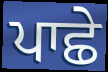
ਪਾਛੇ